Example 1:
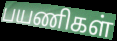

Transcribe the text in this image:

பயணிகள்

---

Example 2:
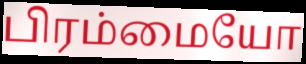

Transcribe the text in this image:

பிரம்மையோ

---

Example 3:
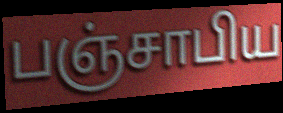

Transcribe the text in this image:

பஞ்சாபிய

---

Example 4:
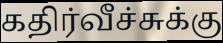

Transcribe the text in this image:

கதிர்வீச்சுக்கு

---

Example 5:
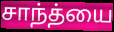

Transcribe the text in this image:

சாந்த்யை